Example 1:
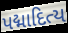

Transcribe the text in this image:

પદ્માદિત્ય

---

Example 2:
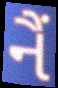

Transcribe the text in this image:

નૈં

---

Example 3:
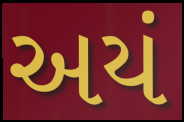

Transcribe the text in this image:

અયં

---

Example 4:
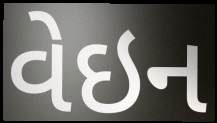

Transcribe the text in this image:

વેઇન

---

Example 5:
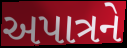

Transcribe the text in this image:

અપાત્રને